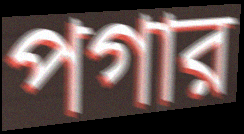
পগার